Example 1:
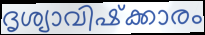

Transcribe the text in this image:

ദൃശ്യാവിഷ്‌ക്കാരം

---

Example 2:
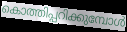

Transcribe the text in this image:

കൊത്തിപ്പറിക്കുമ്പോൾ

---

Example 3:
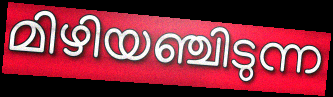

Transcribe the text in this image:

മിഴിയഞ്ചിടുന്ന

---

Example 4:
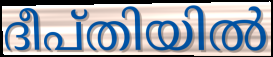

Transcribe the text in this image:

ദീപ്തിയിൽ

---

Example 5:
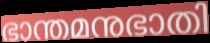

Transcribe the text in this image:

ഭാന്തമനുഭാതി